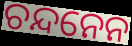
ଚନ୍ଦନେନ